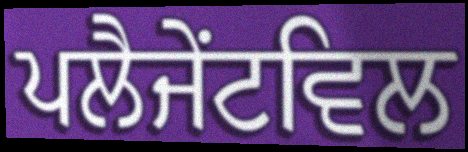
ਪਲੈਜੇਂਟਵਿਲ